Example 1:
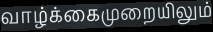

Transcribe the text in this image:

வாழ்க்கைமுறையிலும்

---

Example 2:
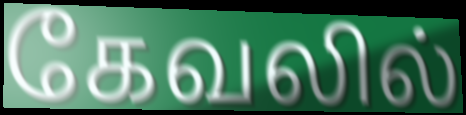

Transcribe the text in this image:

கேவலில்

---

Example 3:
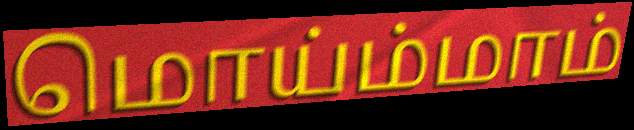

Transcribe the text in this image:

மொய்ம்மாம்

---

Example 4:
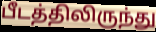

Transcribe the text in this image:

பீடத்திலிருந்து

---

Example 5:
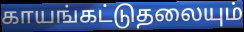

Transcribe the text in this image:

காயங்கட்டுதலையும்